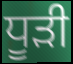
ਧੂੜੀ